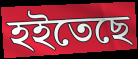
হইতেছে